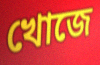
খোজে